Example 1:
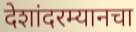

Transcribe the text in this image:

देशांदरम्यानचा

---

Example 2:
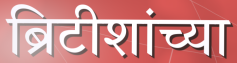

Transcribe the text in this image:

ब्रिटीशांच्या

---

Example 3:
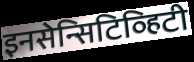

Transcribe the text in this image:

इनसेन्सिटिव्हिटी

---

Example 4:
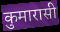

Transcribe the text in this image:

कुमारासी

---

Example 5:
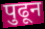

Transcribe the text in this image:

पुढून